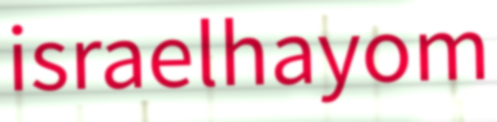
israelhayom